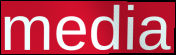
media